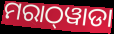
ମରାଠ୍‌ୱାଡା